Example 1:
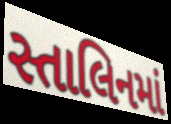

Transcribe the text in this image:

સ્તાલિનમાં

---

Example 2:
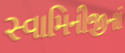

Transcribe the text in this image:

સ્વામિનીજીનાં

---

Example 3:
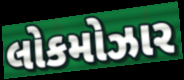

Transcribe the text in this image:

લોકમોઝાર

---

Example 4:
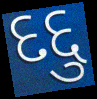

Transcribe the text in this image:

દદ્દુ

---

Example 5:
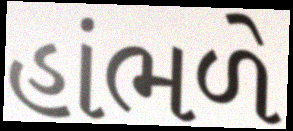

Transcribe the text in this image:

હાંભળે